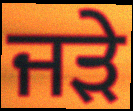
ਜੜੇ